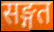
सङ्गत